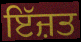
ਇੱਜ਼ਤ